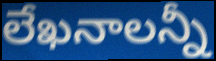
లేఖనాలన్నీ